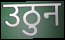
उठुन